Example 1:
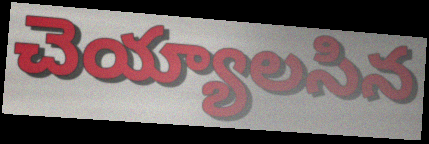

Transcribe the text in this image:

చెయ్యాలసిన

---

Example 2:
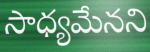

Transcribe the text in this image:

సాధ్యమేనని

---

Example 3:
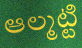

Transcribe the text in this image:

ఆల్మట్టి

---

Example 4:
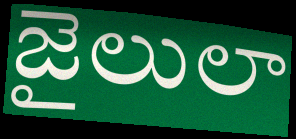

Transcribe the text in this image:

జైలులా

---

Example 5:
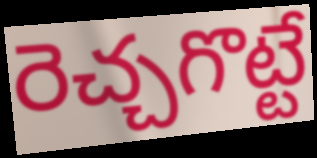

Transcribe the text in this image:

రెచ్చగొట్టే